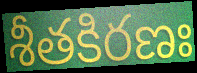
శీతకిరణః